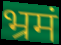
भ्रमं